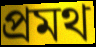
প্রমথ